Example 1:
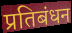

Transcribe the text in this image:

प्रतिबंधन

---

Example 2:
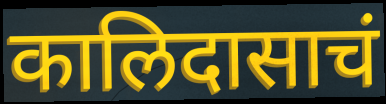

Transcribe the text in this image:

कालिदासाचं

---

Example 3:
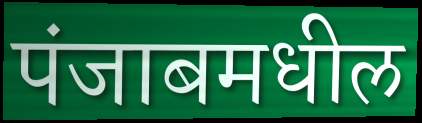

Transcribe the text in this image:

पंजाबमधील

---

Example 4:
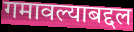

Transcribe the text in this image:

गमावल्याबद्दल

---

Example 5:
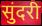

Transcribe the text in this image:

सुंदरी